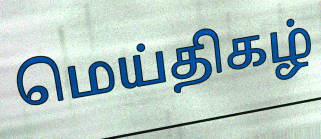
மெய்திகழ்